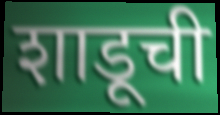
शाडूची